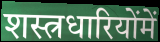
शस्त्रधारियोंमें